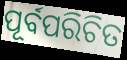
ପୂର୍ବପରିଚିତ